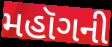
મહૉગની